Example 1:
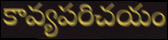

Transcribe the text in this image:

కావ్యపరిచయం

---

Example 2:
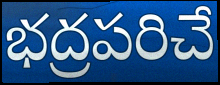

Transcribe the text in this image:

భద్రపరిచే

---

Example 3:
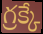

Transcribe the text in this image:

గ్రక్కే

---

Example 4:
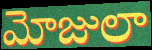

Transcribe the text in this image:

మోజులా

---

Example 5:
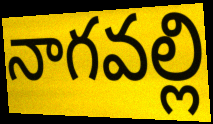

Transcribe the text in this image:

నాగవల్లి